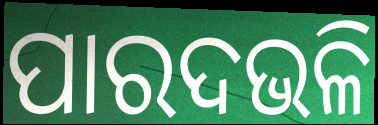
ପାରଦଭଳି